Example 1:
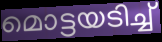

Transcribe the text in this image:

മൊട്ടയടിച്ച്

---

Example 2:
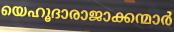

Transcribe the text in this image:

യെഹൂദാരാജാക്കന്മാർ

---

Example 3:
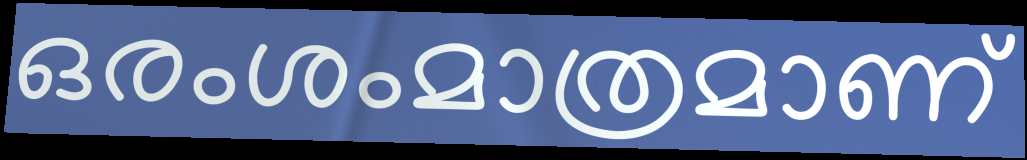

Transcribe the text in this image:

ഒരംശംമാത്രമാണ്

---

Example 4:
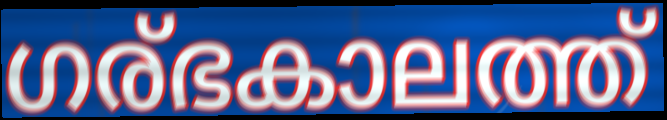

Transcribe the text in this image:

ഗര്ഭകാലത്ത്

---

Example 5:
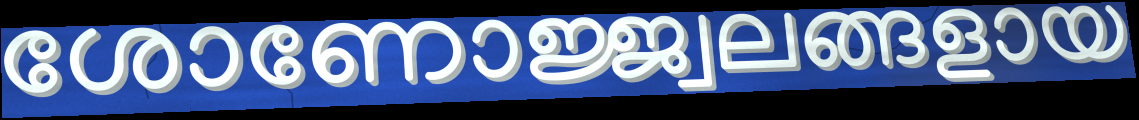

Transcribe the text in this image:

ശോണോജ്ജ്വലങ്ങളായ